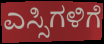
ಎಸ್ಸಿಗಳಿಗೆ